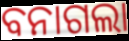
ବନାଗଲା